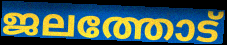
ജലത്തോട്